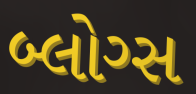
બ્લોગ્સ